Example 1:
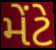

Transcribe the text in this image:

મેંટે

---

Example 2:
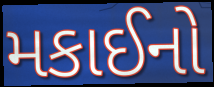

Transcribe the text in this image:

મકાઈનો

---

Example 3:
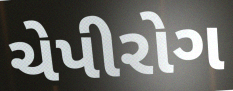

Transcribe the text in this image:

ચેપીરોગ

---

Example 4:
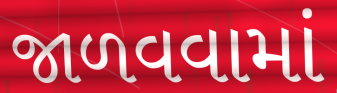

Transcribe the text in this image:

જાળવવામાં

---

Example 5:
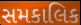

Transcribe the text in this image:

સમકાલિક